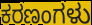
ಕರಣಂಗಳು